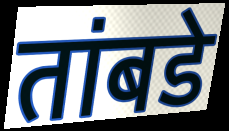
तांबडे